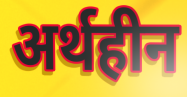
अर्थहीन